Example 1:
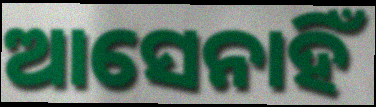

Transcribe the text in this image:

ଆସେନାହିଁ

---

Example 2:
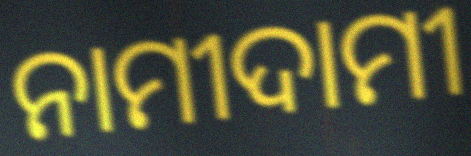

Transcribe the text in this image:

ନାମୀଦାମୀ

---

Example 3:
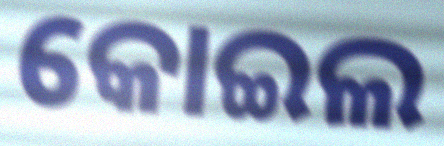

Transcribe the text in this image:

କୋଇଲ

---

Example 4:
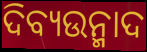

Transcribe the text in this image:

ଦିବ୍ୟଉନ୍ମାଦ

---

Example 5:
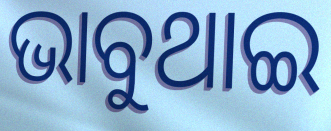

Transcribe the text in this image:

ଭାବୁଥାଇ